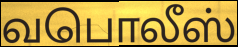
வபொலீஸ்